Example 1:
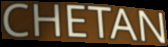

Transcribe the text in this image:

CHETAN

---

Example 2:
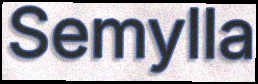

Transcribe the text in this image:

Semylla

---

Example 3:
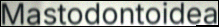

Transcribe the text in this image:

Mastodontoidea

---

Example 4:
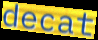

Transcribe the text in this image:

decat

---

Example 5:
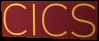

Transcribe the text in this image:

CICS